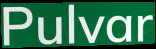
Pulvar